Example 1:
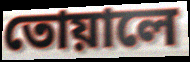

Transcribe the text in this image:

তোয়ালে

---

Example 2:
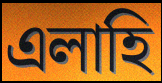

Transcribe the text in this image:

এলাহি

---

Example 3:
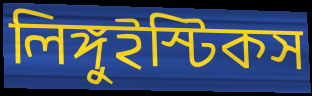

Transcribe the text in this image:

লিঙ্গুইস্টিকস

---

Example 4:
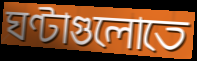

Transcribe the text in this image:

ঘণ্টাগুলোতে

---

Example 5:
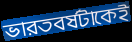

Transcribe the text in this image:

ভারতবর্ষটাকেই